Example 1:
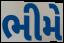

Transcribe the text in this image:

ભીમે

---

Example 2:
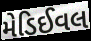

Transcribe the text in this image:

મેડિઈવલ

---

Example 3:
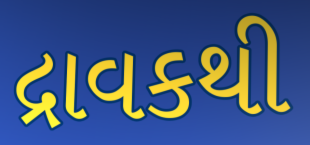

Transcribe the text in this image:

દ્રાવકથી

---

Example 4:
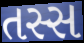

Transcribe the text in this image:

તસ્સ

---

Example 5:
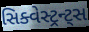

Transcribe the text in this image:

સિક્વેસ્ટ્રન્ટ્સ